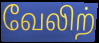
வேலிற்